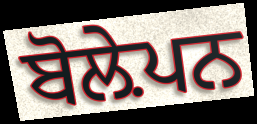
ਬੋਲ਼ੇਪਨ